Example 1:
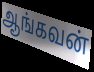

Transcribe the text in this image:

ஆங்கவன்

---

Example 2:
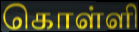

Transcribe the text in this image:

கொள்ளி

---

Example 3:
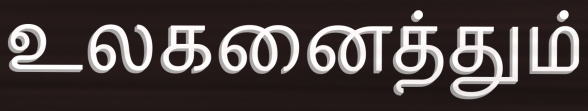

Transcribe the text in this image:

உலகனைத்தும்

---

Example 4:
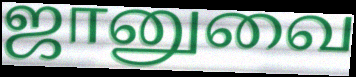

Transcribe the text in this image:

ஜானுவை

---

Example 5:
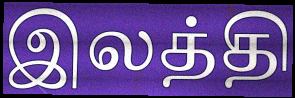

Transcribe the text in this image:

இலத்தி